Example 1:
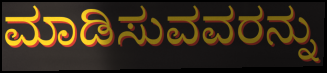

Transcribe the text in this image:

ಮಾಡಿಸುವವರನ್ನು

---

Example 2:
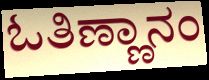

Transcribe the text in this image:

ಓತಿಣ್ಣಾನಂ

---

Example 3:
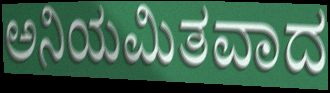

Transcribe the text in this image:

ಅನಿಯಮಿತವಾದ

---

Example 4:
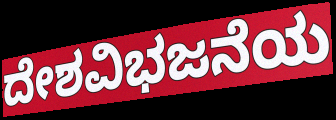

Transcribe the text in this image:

ದೇಶವಿಭಜನೆಯ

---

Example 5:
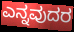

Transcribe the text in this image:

ಎನ್ನವುದರ